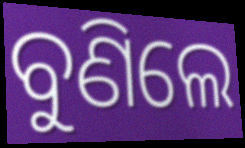
ବୁଣିଲେ